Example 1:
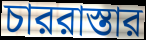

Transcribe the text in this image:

চাররাস্তার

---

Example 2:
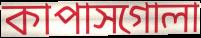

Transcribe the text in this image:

কাপাসগোলা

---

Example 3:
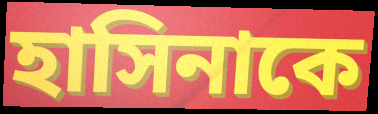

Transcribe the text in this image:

হাসিনাকে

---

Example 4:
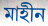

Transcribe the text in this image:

মাহীন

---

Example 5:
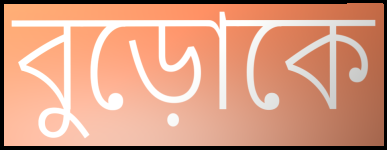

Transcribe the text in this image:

বুড়োকে